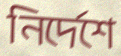
নির্দেশে